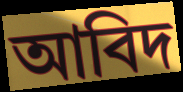
আবিদ